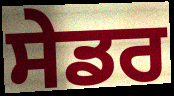
ਸੇਡਰ